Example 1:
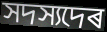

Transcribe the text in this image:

সদস্যদেৰ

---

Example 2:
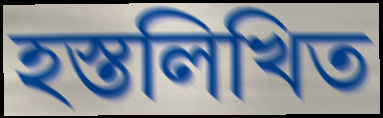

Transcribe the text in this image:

হস্তলিখিত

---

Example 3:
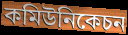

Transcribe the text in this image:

কমিউনিকেচন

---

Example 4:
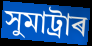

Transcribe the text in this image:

সুমাট্ৰাৰ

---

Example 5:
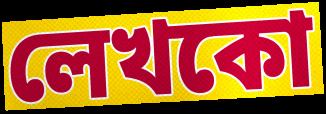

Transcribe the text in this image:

লেখকো